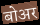
बोअर